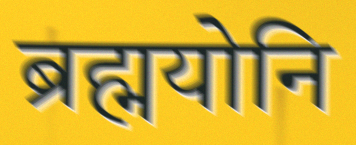
ब्रह्मयोनि